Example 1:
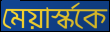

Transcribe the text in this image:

মেয়ার্স্ককে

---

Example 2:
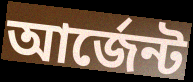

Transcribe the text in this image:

আর্জেন্ট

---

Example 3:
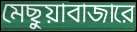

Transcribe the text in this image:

মেছুয়াবাজারে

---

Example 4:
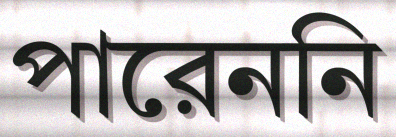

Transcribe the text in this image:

পারেননি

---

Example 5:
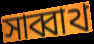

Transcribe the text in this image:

সাব্বাথ